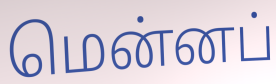
மென்னப்